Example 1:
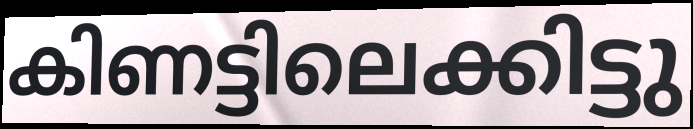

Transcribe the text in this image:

കിണട്ടിലെക്കിട്ടു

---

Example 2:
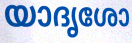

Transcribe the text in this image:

യാദൃശോ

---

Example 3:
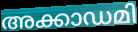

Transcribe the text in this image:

അക്കാഡമി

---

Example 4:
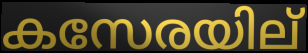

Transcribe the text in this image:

കസേരയില്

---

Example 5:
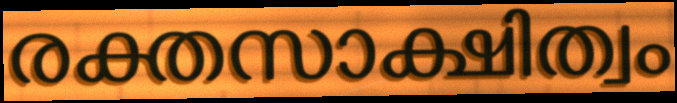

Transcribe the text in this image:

രക്തസാക്ഷിത്വം